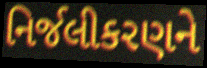
નિર્જલીકરણને